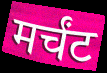
मर्चंट